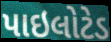
પાઇલોટેડ